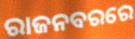
ରାଜନବରରେ